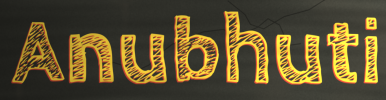
Anubhuti